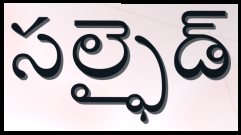
సల్ఫైడ్